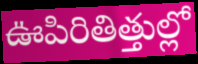
ఊపిరితిత్తుల్లో